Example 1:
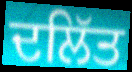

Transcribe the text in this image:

ਦਲਿੱਤ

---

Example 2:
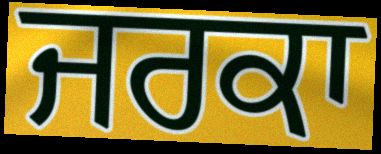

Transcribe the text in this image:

ਜਰਕਾ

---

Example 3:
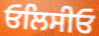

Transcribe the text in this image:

ਓਲਿਸੀਓ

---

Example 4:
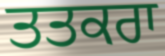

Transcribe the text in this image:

ਤਤਕਰਾ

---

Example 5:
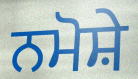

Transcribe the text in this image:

ਨਮੋਸ਼ੇ